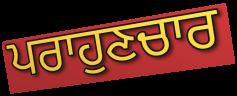
ਪਰਾਹੁਣਚਾਰ